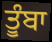
ਤੂੰਬਾ